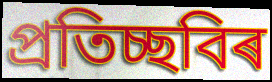
প্ৰতিচ্ছবিৰ